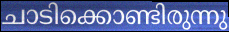
ചാടിക്കൊണ്ടിരുന്നു